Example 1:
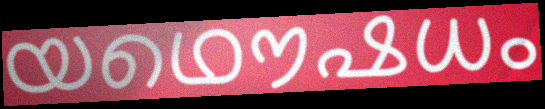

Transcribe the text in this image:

യഥൌഷധം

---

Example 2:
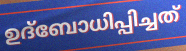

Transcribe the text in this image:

ഉദ്ബോധിപ്പിച്ചത്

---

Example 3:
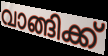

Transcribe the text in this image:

വാങ്ങിക്ക്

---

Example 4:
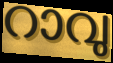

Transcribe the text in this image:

റാവു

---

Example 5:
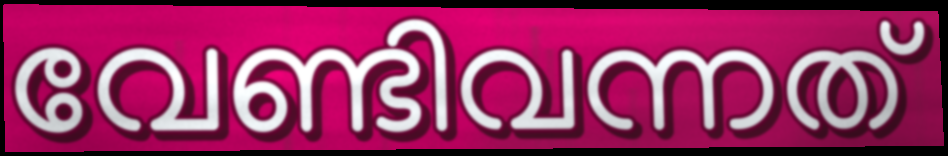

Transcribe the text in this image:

വേണ്ടിവന്നത്